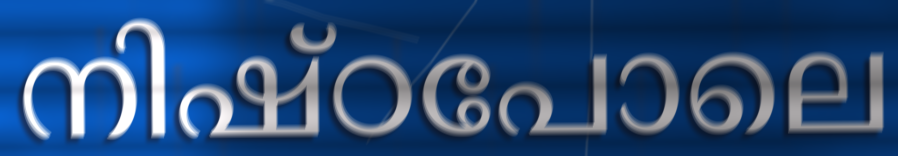
നിഷ്ഠപോലെ